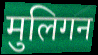
मुलिगन